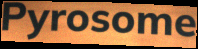
Pyrosome